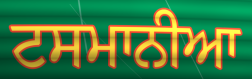
ਟਸਮਾਨੀਆ